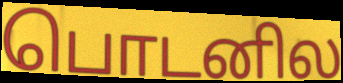
பொடனில